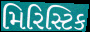
મિરિસ્ટિક